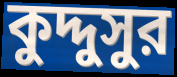
কুদ্দুসুর